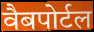
वैबपोर्टल